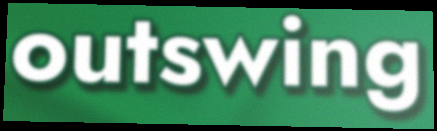
outswing